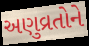
અણુવ્રતોને